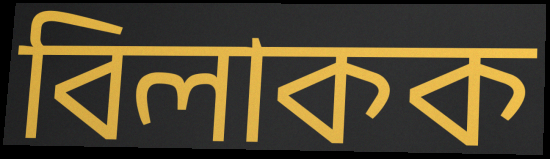
বিলাকক